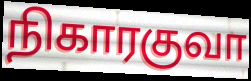
நிகாரகுவா